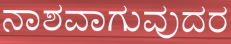
ನಾಶವಾಗುವುದರ